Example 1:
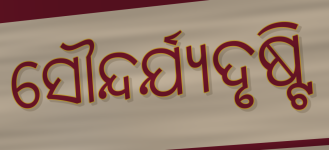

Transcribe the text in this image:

ସୌନ୍ଦର୍ଯ୍ୟଦୃଷ୍ଟି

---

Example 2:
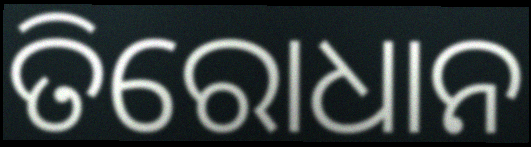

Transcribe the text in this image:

ତିରୋଧାନ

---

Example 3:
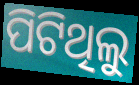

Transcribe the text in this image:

ପିଟିଥିଲୁ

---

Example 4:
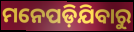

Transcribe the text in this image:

ମନେପଡ଼ିଯିବାରୁ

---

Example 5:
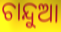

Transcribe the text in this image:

ଚାନ୍ଦୁଆ